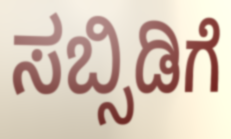
ಸಬ್ಸಿಡಿಗೆ